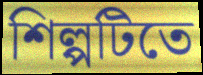
শিল্পটিতে